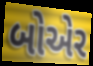
બોએર